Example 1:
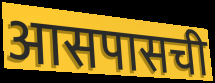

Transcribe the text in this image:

आसपासची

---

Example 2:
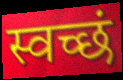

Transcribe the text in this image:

स्वच्छं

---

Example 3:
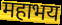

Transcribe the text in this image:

महाभय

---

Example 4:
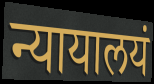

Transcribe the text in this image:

न्यायालयं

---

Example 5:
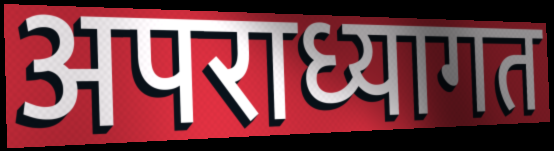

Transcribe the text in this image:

अपराध्यागत